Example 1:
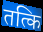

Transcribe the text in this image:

तत्कि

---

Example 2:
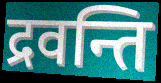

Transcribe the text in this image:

द्रवन्ति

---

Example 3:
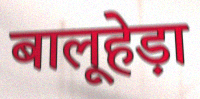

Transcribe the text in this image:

बालूहेड़ा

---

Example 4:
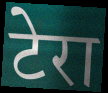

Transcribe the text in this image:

टेरा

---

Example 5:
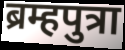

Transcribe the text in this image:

ब्रम्हपुत्रा